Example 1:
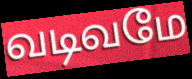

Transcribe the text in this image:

வடிவமே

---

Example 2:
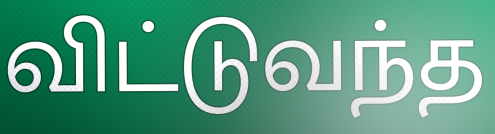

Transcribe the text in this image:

விட்டுவந்த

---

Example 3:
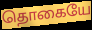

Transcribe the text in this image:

தொகையே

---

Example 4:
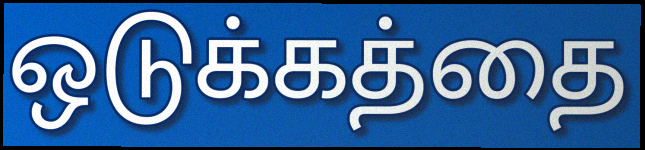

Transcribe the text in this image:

ஒடுக்கத்தை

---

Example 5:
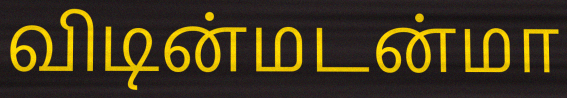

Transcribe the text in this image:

விடின்மடன்மா